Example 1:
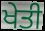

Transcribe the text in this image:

ਖੇਤੀ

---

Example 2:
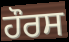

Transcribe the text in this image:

ਹੌਰਸ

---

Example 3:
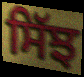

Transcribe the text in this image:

ਸਿੱਝ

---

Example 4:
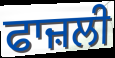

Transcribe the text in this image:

ਫਾਜ਼ਲੀ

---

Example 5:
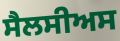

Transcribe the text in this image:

ਸੈਲਸੀਅਸ